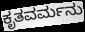
ಕೃತವರ್ಮನು